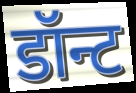
डॉन्ट